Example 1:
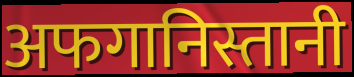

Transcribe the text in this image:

अफगानिस्तानी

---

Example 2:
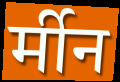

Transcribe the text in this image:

र्मीन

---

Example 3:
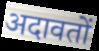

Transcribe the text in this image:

अदावतों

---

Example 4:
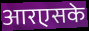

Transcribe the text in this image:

आरएसके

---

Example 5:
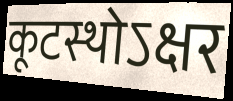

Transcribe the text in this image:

कूटस्थोऽक्षर